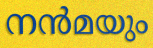
നൻമയും